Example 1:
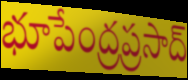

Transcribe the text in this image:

భూపేంద్రప్రసాద్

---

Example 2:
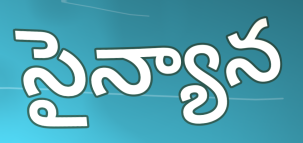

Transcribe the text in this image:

సైన్యాన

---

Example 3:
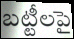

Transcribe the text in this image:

బట్టీలపై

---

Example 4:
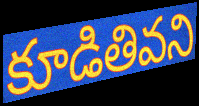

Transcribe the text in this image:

కూడితివని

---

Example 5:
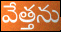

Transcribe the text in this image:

వేత్తను